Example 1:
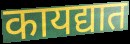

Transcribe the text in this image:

कायद्यात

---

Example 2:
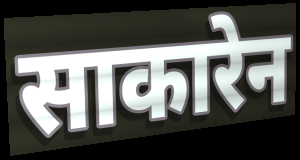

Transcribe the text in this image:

साकारेन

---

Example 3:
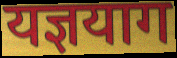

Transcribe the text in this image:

यज्ञयाग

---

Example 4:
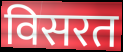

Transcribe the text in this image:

विसरत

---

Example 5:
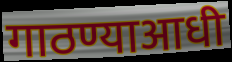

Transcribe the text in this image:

गाठण्याआधी